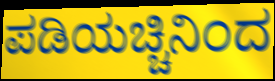
ಪಡಿಯಚ್ಚಿನಿಂದ